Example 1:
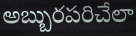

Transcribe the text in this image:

అబ్బురపరిచేలా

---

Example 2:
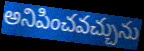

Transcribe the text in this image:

అనిపించవచ్చును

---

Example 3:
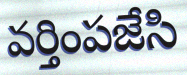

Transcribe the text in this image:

వర్తింపజేసి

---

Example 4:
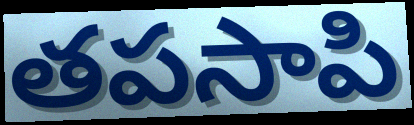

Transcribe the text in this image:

తపసాపి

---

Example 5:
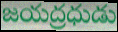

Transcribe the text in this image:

జయద్రధుడు